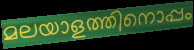
മലയാളത്തിനൊപ്പം